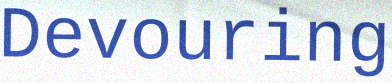
Devouring